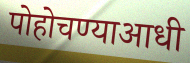
पोहोचण्याआधी